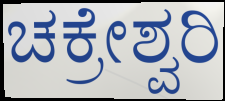
ಚಕ್ರೇಶ್ವರಿ